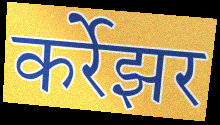
कर्रेझर